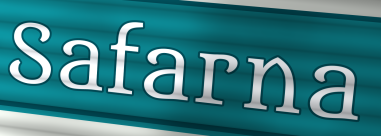
Safarna